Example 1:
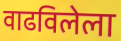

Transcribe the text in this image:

वाढविलेला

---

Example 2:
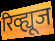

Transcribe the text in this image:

रिव्ह्यूज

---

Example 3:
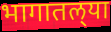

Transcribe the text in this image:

भागातल्या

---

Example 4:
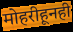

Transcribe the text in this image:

मोहरीहूनही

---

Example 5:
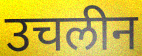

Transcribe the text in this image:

उचलीन